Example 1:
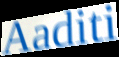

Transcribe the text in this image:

Aaditi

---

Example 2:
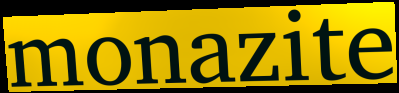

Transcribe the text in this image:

monazite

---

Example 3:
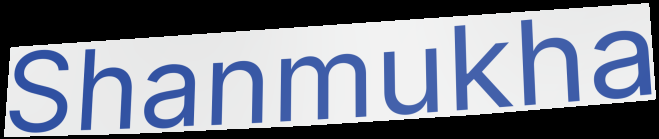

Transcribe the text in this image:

Shanmukha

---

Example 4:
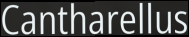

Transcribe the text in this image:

Cantharellus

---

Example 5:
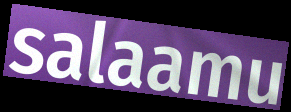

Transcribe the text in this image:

salaamu